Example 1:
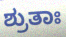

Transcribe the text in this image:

ಶ್ರುತಾಃ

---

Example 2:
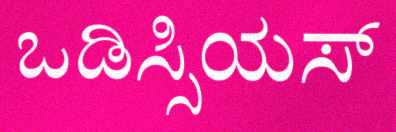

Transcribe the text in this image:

ಒಡಿಸ್ಸಿಯಸ್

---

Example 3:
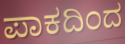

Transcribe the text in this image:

ಪಾಕದಿಂದ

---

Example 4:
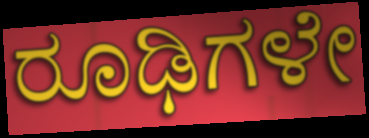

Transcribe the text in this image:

ರೂಢಿಗಳೇ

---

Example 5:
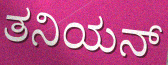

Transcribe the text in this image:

ತನಿಯನ್